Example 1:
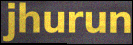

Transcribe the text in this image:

jhurun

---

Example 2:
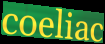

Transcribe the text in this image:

coeliac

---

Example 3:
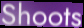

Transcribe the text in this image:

Shoots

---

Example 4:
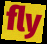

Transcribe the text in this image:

fly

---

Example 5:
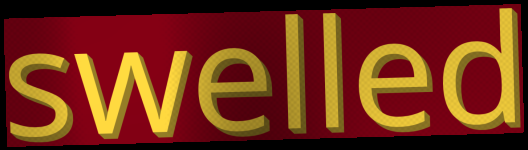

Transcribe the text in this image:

swelled